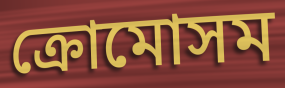
ক্রোমোসম